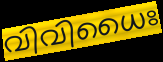
വിവിധൈഃ